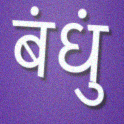
बंधुं